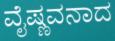
ವೈಷ್ಣವನಾದ